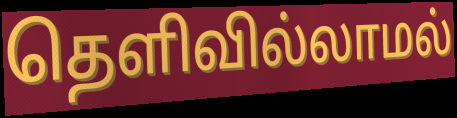
தெளிவில்லாமல்